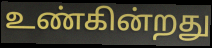
உண்கின்றது